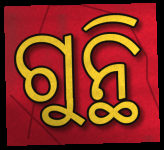
ଗୁନ୍ଥି